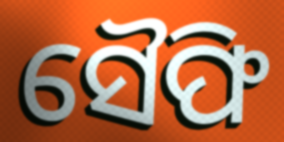
ସୈଫି